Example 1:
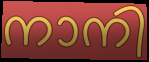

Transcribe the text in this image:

നാനി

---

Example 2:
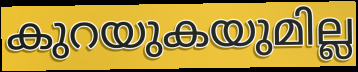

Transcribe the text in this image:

കുറയുകയുമില്ല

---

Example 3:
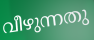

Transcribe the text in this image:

വീഴുന്നതു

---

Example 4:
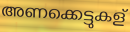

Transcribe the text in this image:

അണക്കെട്ടുകള്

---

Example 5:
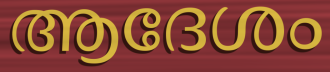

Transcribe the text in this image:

ആദേശം